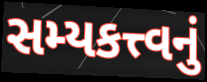
સમ્યકત્ત્વનું